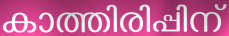
കാത്തിരിപ്പിന്